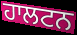
ਹਾਲਟਨ